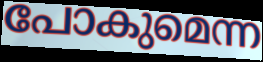
പോകുമെന്ന